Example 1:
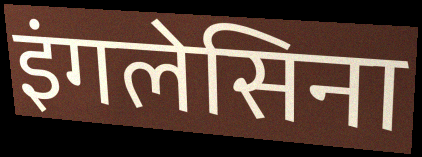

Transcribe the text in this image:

इंगलेसिना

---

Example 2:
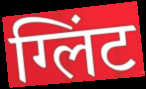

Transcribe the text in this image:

ग्लिंट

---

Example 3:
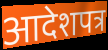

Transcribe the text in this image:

आदेशपत्र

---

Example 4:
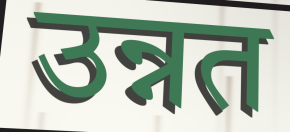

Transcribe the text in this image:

उन्नत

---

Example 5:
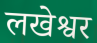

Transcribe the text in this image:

लखेश्वर